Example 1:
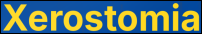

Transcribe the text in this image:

Xerostomia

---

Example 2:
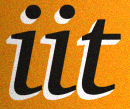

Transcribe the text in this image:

iit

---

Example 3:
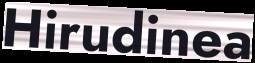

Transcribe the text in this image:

Hirudinea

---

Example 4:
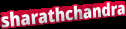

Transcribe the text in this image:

sharathchandra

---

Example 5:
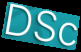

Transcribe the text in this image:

DSc